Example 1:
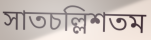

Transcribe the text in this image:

সাতচল্লিশতম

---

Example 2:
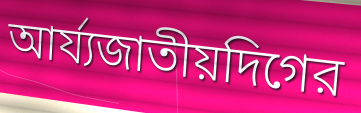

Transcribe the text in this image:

আর্য্যজাতীয়দিগের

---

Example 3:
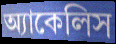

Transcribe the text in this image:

অ্যাকেলিস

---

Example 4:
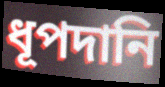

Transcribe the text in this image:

ধূপদানি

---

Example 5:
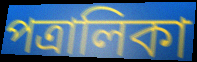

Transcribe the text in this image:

পত্রালিকা